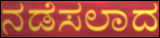
ನಡೆಸಲಾದ